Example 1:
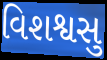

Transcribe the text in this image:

વિશશ્વસુ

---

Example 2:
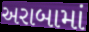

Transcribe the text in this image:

અરાબામાં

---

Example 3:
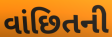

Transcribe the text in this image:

વાંછિતની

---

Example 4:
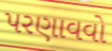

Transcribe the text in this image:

પરણાવવો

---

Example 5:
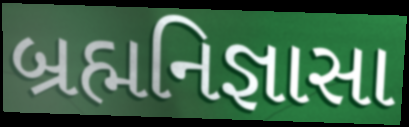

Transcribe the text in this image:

બ્રહ્મનિજ્ઞાસા